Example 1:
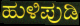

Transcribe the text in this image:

ಹುಳಿಪುಡಿ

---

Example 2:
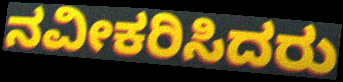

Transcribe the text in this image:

ನವೀಕರಿಸಿದರು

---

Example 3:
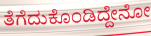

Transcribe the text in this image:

ತೆಗೆದುಕೊಂಡಿದ್ದೇನೋ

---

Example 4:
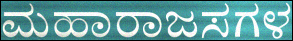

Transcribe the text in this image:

ಮಹಾರಾಜಸಗಳ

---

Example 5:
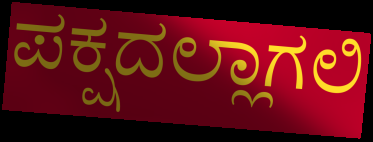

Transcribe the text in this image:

ಪಕ್ಷದಲ್ಲಾಗಲಿ